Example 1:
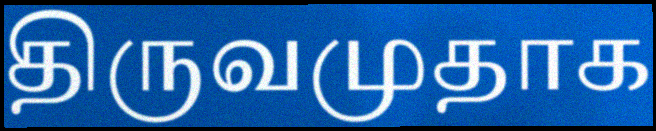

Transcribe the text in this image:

திருவமுதாக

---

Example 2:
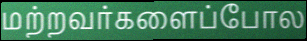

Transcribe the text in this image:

மற்றவர்களைப்போல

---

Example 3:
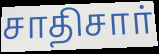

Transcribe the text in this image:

சாதிசார்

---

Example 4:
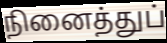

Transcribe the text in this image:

நினைத்துப்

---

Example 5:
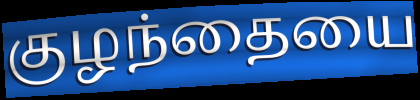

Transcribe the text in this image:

குழந்தையை